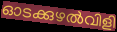
ഓടക്കുഴൽവിളി